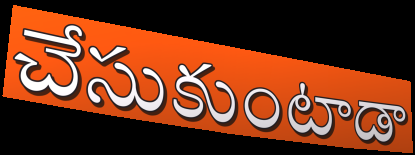
చేసుకుంటాడా